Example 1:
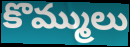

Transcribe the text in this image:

కొమ్ములు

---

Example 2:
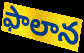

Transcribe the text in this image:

ఫాలాన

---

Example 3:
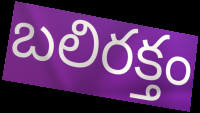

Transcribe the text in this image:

బలిరక్తం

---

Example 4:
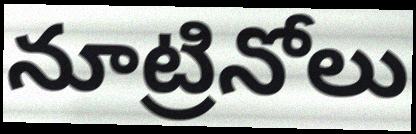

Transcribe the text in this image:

నూట్రినోలు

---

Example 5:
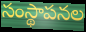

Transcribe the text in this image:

సంస్థాపనల